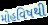
મોહવિષથી